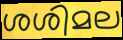
ശശിമല